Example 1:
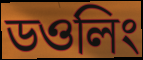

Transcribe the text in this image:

ডওলিং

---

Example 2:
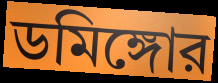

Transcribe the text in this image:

ডমিঙ্গোর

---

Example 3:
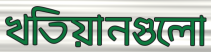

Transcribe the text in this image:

খতিয়ানগুলো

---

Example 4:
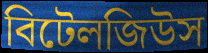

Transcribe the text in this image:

বিটেলজিউস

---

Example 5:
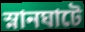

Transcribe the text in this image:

স্নানঘাটে